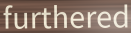
furthered